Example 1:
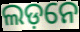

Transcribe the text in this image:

ଲଡ଼ନେ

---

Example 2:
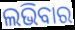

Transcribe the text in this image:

ଲଭିବାର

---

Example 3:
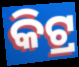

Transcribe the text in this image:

କିଟ୍ର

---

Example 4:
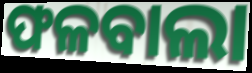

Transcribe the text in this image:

ଫଳବାଲା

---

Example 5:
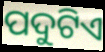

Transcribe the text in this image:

ପଦୁଟିଏ